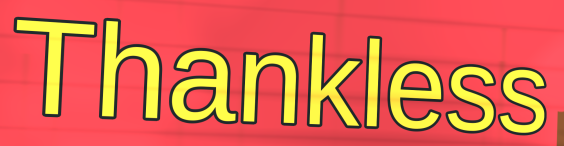
Thankless